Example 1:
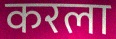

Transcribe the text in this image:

करला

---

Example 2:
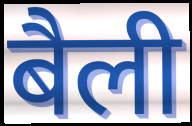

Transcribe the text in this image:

बैली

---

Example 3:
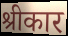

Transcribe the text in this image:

श्रीकार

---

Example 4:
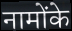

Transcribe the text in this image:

नामोंके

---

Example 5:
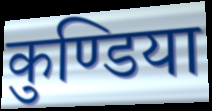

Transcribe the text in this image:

कुण्डिया